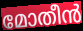
മോതീൻ